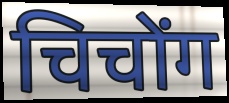
चिचोंग